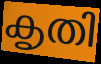
കൃതി